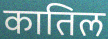
कातिल